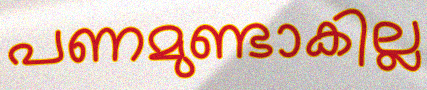
പണമുണ്ടാകില്ല